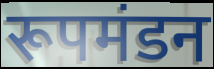
रूपमंडन